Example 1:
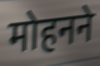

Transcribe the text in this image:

मोहनने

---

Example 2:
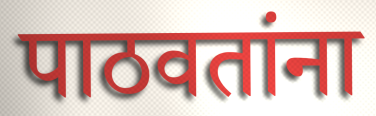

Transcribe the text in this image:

पाठवतांना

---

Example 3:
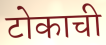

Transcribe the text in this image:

टोकाची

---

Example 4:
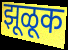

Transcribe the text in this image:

झूळूक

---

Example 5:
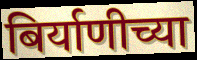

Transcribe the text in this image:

बिर्याणीच्या